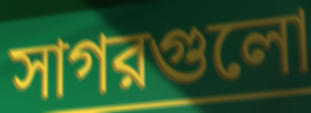
সাগরগুলো